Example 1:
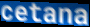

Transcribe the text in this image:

cetana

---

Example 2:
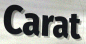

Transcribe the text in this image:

Carat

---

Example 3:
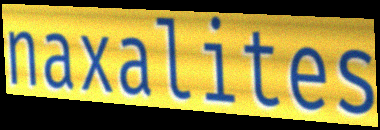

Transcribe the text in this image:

naxalites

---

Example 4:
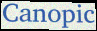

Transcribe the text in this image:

Canopic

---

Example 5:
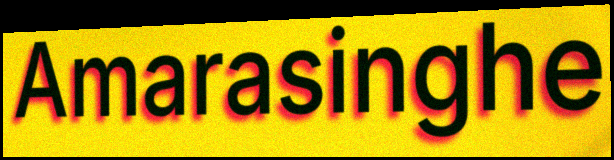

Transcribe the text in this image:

Amarasinghe